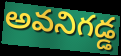
అవనిగడ్డ